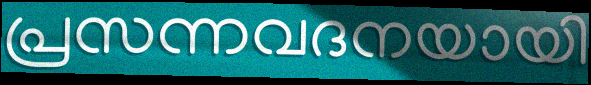
പ്രസന്നവദനയായി